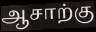
ஆசாற்கு